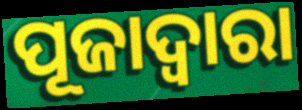
ପୂଜାଦ୍ୱାରା